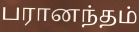
பரானந்தம்